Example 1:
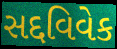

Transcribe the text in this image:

સદ્દવિવેક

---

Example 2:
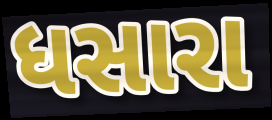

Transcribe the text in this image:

ધસારા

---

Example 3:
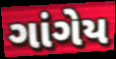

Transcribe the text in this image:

ગાંગેય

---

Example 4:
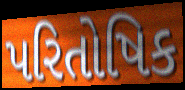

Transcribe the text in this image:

પરિતોષિક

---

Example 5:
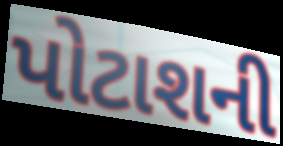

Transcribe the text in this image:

પોટાશની